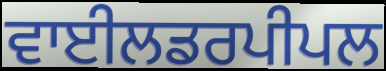
ਵਾਈਲਡਰਪੀਪਲ